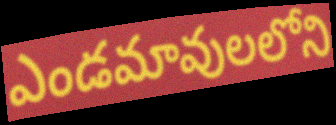
ఎండమావులలోని